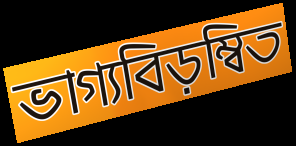
ভাগ্যবিড়ম্বিত